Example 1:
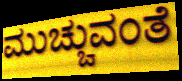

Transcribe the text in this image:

ಮುಚ್ಚುವಂತೆ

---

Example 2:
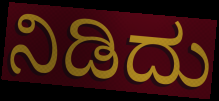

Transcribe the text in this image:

ನಿಡಿದು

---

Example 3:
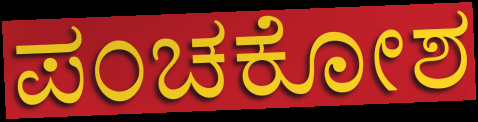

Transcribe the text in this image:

ಪಂಚಕೋಶ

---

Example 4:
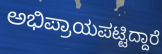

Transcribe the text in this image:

ಅಭಿಪ್ರಾಯಪಟ್ಟಿದ್ದಾರೆ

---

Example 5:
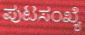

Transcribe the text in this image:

ಪುಟಸಂಖ್ಯೆ